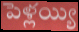
పెళ్లయ్యి